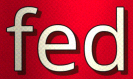
fed